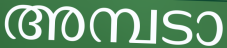
അമ്പടാ